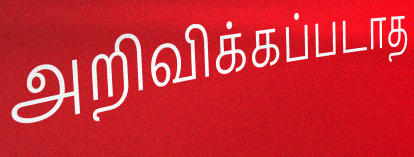
அறிவிக்கப்படாத